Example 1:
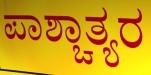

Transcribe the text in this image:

ಪಾಶ್ಚಾತ್ಯರ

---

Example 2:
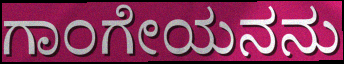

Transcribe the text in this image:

ಗಾಂಗೇಯನನು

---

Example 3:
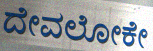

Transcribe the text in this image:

ದೇವಲೋಕೇ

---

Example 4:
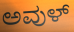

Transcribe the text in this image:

ಅವುಳ್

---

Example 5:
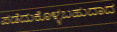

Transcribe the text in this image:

ಪಡೆದುಕೊಳ್ಳಬಹುದಾದ